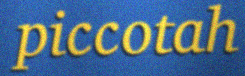
piccotah